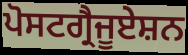
ਪੋਸਟਗ੍ਰੈਜੂਏਸ਼ਨ